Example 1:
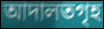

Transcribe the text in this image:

আদালতগৃহ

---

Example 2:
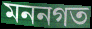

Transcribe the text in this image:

মননগত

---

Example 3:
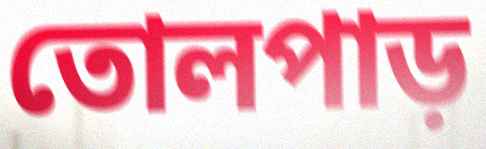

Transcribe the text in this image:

তোলপাড়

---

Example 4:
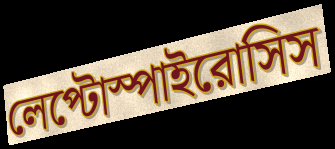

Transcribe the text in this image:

লেপ্টোস্পাইরোসিস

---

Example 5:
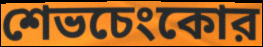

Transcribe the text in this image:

শেভচেংকোর